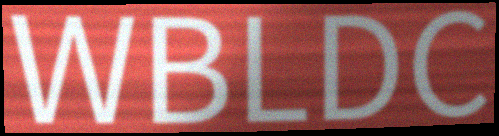
WBLDC